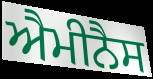
ਐਮੀਨੈਸ